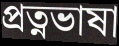
প্রত্নভাষা